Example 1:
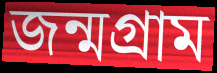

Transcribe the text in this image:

জন্মগ্রাম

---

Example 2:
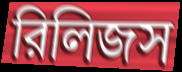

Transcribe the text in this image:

রিলিজস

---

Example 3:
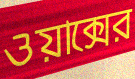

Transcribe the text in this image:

ওয়াক্সের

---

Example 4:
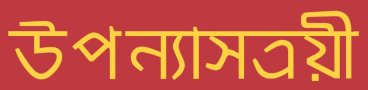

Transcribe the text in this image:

উপন্যাসত্রয়ী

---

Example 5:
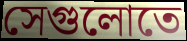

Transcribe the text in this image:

সেগুলোতে